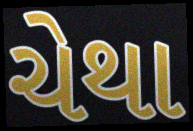
ચેથા